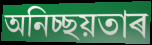
অনিচ্ছয়তাৰ